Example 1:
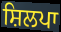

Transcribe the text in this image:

ਸ਼ਿਲਪਾ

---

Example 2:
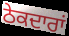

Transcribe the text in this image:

ਠੇਕਦਾਰਾਂ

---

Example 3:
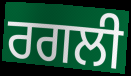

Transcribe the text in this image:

ਰਗਲੀ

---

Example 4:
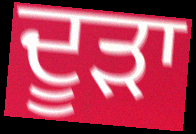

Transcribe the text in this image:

ਦੂੜਾ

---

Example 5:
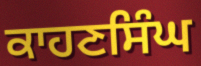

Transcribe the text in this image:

ਕਾਹਣਸਿੰਘ